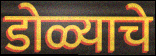
डोळ्याचे